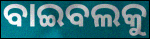
ବାଇବଲକୁ